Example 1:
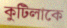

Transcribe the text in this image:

কুটিলাকে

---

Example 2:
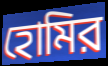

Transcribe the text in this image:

হোমির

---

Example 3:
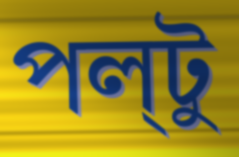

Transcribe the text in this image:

পল্‌টু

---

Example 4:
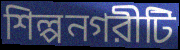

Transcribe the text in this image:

শিল্পনগরীটি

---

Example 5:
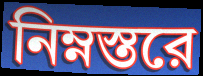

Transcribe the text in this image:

নিম্নস্তরে